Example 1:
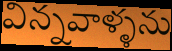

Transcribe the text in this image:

విన్నవాళ్ళను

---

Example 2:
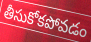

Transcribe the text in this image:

తీసుకోకపోవడం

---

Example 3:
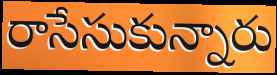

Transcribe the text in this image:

రాసేసుకున్నారు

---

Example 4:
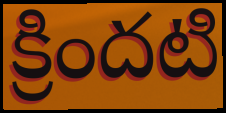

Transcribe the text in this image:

క్రిందటి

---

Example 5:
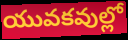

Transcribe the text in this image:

యువకవుల్లో